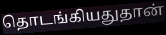
தொடங்கியதுதான்